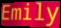
Emily